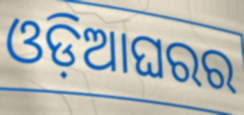
ଓଡ଼ିଆଘରର